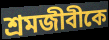
শ্রমজীবীকে